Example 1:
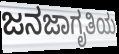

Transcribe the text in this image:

ಜನಜಾಗೃತಿಯ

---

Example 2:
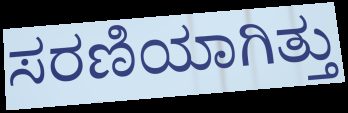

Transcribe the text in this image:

ಸರಣಿಯಾಗಿತ್ತು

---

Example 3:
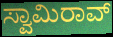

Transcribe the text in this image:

ಸ್ವಾಮಿರಾವ್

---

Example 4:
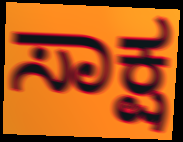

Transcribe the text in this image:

ಸಾಕ್ಷ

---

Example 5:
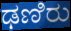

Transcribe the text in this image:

ಢಣಿರು